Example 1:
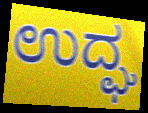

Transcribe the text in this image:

ಉದ್ಘ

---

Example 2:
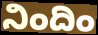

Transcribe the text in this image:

ನಿಂದಿಂ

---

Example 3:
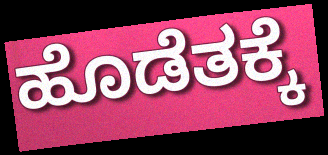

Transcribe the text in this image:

ಹೊಡೆತಕ್ಕೆ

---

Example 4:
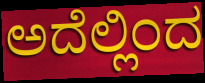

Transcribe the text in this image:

ಅದೆಲ್ಲಿಂದ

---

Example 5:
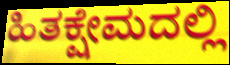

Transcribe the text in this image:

ಹಿತಕ್ಷೇಮದಲ್ಲಿ